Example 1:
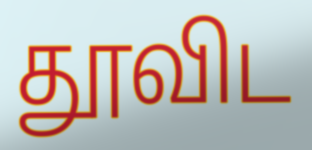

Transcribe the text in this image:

தூவிட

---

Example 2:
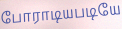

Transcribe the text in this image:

போராடியபடியே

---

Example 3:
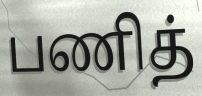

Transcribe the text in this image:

பணித்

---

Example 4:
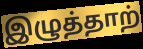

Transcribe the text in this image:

இழுத்தாற்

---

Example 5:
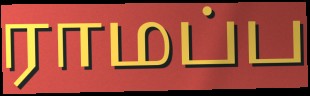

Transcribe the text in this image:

ராமப்ப